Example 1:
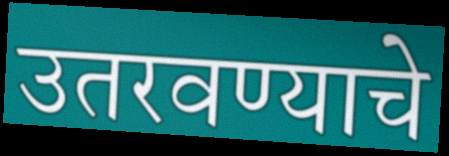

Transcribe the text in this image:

उतरवण्याचे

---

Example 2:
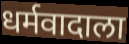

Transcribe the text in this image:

धर्मवादाला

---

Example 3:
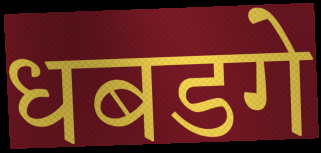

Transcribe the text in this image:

धबडगे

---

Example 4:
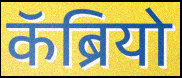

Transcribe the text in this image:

कॅब्रियो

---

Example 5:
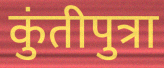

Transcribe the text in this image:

कुंतीपुत्रा